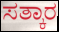
ಸತ್ಕಾರ